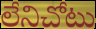
లేనిచోటు